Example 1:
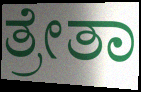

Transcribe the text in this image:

ತ್ರೇತಾ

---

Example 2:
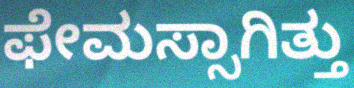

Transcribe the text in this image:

ಫೇಮಸ್ಸಾಗಿತ್ತು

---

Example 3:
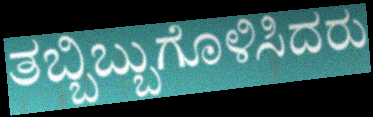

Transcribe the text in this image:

ತಬ್ಬಿಬ್ಬುಗೊಳಿಸಿದರು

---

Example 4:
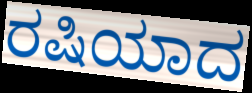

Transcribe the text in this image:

ರಷಿಯಾದ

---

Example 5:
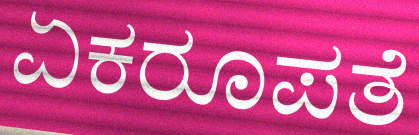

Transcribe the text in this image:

ಏಕರೂಪತೆ